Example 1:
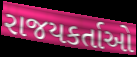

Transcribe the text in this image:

રાજયકર્તાઓ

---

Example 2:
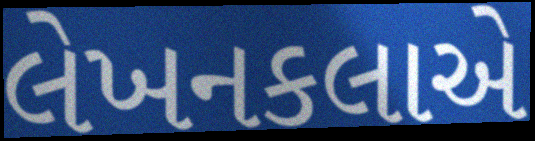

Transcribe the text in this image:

લેખનકલાએ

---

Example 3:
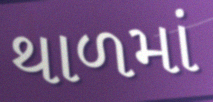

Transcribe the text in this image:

થાળમાં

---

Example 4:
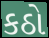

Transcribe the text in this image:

કઠો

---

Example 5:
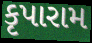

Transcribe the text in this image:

કૃપારામ